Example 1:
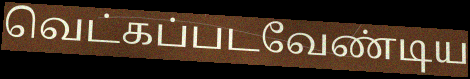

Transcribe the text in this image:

வெட்கப்படவேண்டிய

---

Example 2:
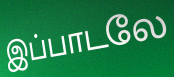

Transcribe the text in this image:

இப்பாடலே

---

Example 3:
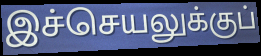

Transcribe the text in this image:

இச்செயலுக்குப்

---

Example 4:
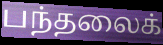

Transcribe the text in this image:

பந்தலைக்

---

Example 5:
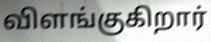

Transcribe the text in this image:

விளங்குகிறார்